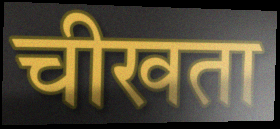
चीखता